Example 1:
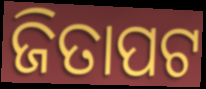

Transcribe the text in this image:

ଜିତାପଟ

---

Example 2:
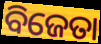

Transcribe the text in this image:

ବିଜେତା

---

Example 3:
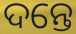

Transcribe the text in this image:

ଦନ୍ତେ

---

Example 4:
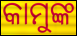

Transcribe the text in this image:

କାମୁଙ୍କ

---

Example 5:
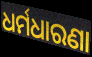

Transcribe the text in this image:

ଧର୍ମଧାରଣା